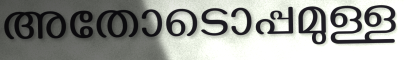
അതോടൊപ്പമുള്ള